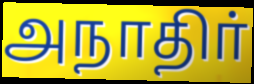
அநாதிர்